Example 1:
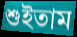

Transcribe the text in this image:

শুইতাম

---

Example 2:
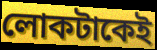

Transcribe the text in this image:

লোকটাকেই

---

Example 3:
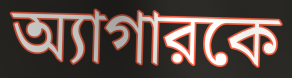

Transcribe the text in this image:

অ্যাগারকে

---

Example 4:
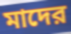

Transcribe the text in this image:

মাদের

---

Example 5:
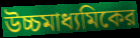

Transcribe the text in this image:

উচ্চমাধ্যমিকের